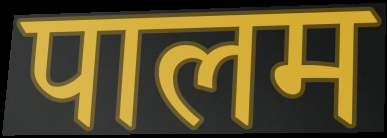
पालम